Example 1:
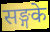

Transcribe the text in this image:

सङ्गके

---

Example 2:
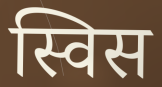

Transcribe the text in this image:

स्विस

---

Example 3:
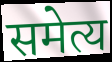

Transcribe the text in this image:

समेत्य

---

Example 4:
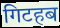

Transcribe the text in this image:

गिटहब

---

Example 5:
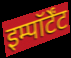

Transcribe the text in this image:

इम्पॉर्टेंट